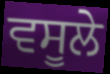
ਵਸੂਲੇ